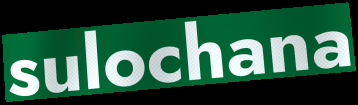
sulochana